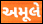
અમૂલે